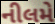
નીલમે